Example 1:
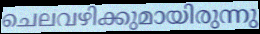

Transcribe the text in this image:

ചെലവഴിക്കുമായിരുന്നു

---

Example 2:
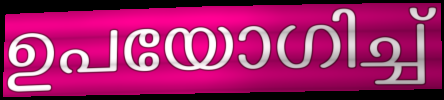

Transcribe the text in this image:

ഉപയോഗിച്ച്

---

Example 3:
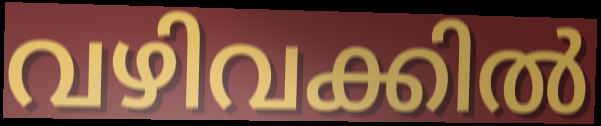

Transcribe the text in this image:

വഴിവക്കിൽ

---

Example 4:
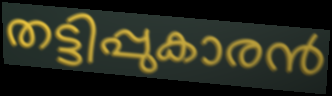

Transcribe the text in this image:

തട്ടിപ്പുകാരൻ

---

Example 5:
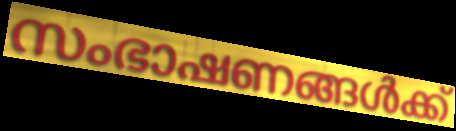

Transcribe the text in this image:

സംഭാഷണങ്ങൾക്ക്